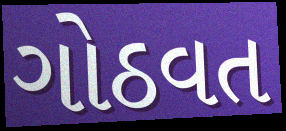
ગોઠવત